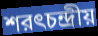
শরৎচন্দ্রীয়